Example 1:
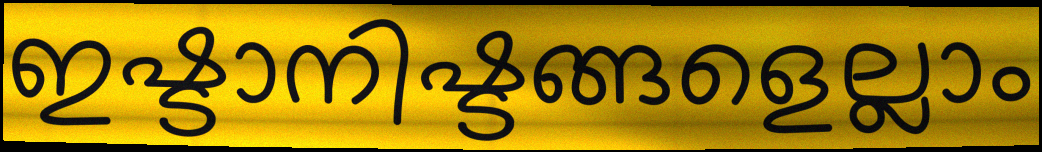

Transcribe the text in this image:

ഇഷ്ടാനിഷ്ടങ്ങളെല്ലാം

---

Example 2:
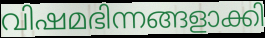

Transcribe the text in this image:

വിഷമഭിന്നങ്ങളാക്കി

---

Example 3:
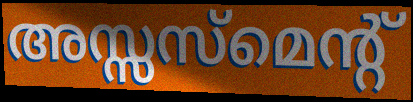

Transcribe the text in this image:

അസ്സസ്മെന്റ്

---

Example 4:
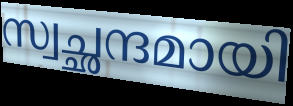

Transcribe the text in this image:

സ്വച്ഛന്ദമായി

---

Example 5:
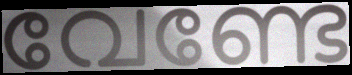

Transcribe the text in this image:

വേണ്ടേ